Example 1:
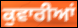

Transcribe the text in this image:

ਕੁਵਾਰੀਆਂ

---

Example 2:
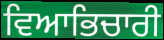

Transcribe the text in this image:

ਵਿਆਭਿਚਾਰੀ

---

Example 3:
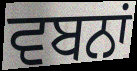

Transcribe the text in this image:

ਵਬਨਾਂ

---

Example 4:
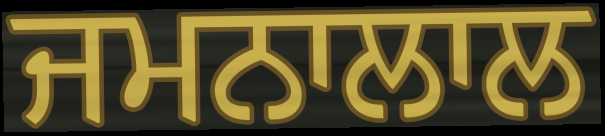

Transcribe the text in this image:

ਜਮਨਾਲਾਲ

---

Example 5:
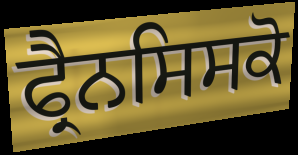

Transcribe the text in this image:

ਫ੍ਰੈਨਸਿਸਕੋ